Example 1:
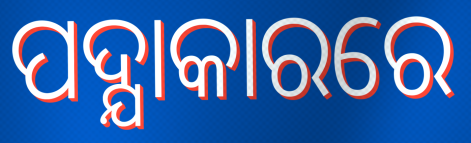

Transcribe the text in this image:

ପଦ୍ଯାକାରରେ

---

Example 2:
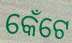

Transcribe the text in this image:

କେଁଟେ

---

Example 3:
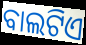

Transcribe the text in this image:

ବାଲଟିଏ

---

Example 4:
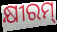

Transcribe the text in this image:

କ୍ଷୀରମ୍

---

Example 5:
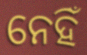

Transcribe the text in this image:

ନେହିଁ